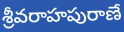
శ్రీవరాహపురాణే